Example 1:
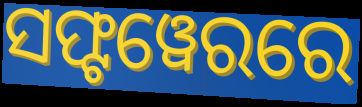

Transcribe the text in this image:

ସଫ୍ଟୱେରରେ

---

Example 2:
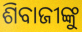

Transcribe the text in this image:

ଶିବାଜୀଙ୍କୁ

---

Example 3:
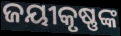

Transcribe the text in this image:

ଜୟୀକୃଷ୍ଣଙ୍କ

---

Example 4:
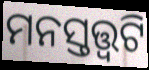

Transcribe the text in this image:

ମନସ୍ତତ୍ତ୍ୱଟି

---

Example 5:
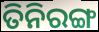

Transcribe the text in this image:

ତିନିରଙ୍ଗ